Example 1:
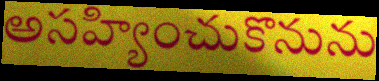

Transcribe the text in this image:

అసహ్యించుకొనును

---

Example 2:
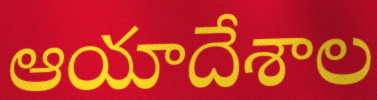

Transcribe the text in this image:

ఆయాదేశాల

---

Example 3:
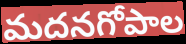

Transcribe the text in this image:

మదనగోపాల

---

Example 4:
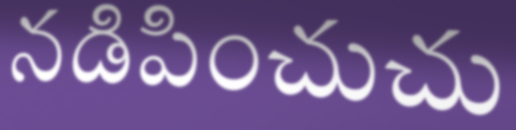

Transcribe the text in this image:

నడిపించుచు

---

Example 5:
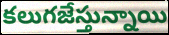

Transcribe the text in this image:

కలుగజేస్తున్నాయి